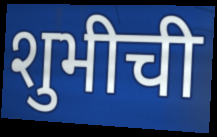
शुभीची